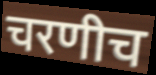
चरणीच